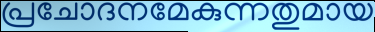
പ്രചോദനമേകുന്നതുമായ